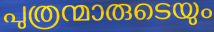
പുത്രന്മാരുടെയും